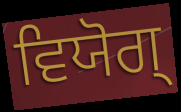
ਵਿਯੋਗ੍